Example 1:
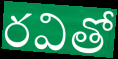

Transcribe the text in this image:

రవితో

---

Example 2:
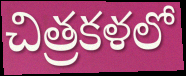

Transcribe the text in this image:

చిత్రకళలో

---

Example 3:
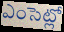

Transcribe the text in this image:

ఎంసెట్లో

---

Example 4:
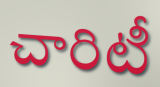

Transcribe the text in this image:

చారిటీ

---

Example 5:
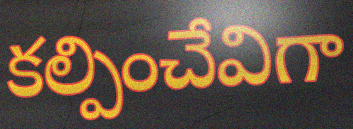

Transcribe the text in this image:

కల్పించేవిగా